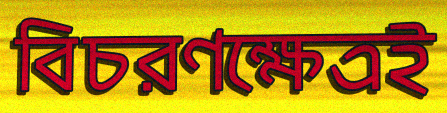
বিচরণক্ষেত্রই